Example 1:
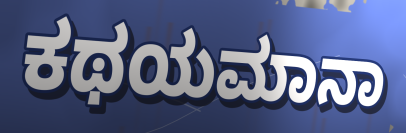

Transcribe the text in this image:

ಕಥಯಮಾನಾ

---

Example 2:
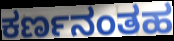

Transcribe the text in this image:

ಕರ್ಣನಂತಹ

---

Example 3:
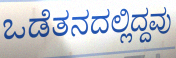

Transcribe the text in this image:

ಒಡೆತನದಲ್ಲಿದ್ದವು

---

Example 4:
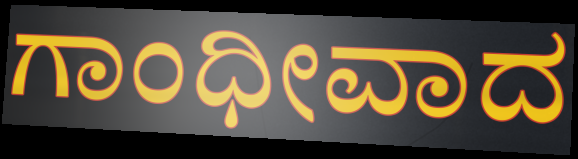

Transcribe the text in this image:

ಗಾಂಧೀವಾದ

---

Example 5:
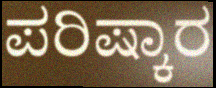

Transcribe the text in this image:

ಪರಿಷ್ಕಾರ